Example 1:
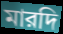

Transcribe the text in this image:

মারদি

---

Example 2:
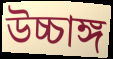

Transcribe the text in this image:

উচ্চাঙ্গ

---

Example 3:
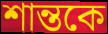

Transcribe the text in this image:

শান্তকে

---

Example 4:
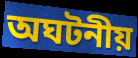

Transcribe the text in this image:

অঘটনীয়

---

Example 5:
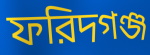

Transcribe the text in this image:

ফরিদগঞ্জ